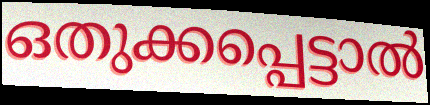
ഒതുക്കപ്പെട്ടാൽ